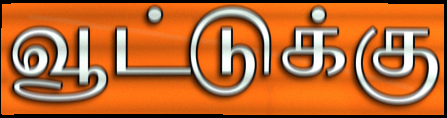
வூட்டுக்கு